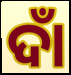
ଦାଁ